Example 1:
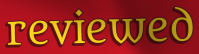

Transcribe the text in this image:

reviewed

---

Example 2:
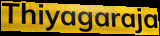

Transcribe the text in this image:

Thiyagaraja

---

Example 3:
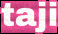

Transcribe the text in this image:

taji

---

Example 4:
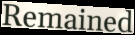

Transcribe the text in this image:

Remained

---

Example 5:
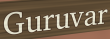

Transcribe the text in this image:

Guruvar